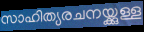
സാഹിത്യരചനയ്ക്കുള്ള